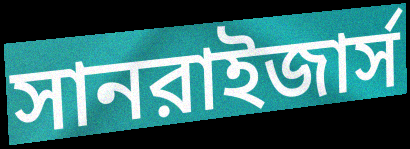
সানরাইজার্স